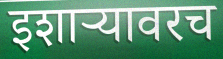
इशाऱ्यावरच